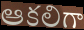
ఆకలిగా